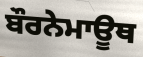
ਬੌਰਨੇਮਾਊਥ